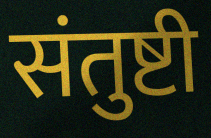
संतुष्टी